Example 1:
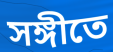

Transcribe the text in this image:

সঙ্গীতে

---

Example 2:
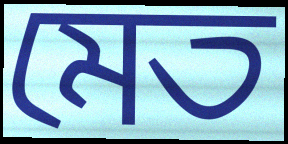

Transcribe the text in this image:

মেত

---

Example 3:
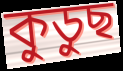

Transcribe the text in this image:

কুডুছ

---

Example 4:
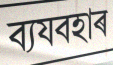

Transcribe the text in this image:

ব্যযবহাৰ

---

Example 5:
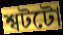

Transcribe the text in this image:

শ্বটটো